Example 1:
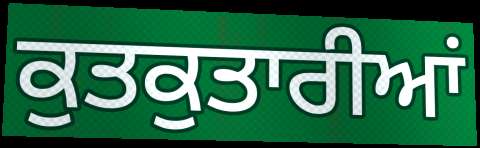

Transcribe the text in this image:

ਕੁਤਕੁਤਾਰੀਆਂ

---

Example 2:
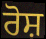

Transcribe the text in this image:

ਰੋਸ਼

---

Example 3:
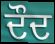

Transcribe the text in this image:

ਦੌਦ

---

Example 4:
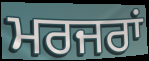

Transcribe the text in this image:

ਮਰਜਰਾਂ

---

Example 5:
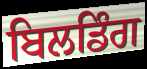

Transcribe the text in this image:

ਬਿਲਡਿੰਗ